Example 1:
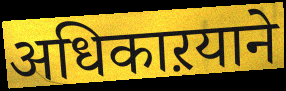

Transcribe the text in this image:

अधिकाऱयाने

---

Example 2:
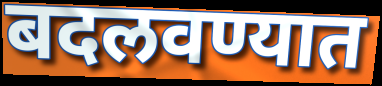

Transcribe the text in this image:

बदलवण्यात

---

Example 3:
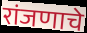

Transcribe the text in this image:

रांजणाचे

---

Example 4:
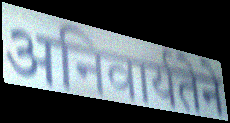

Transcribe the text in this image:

अनिवार्यतेने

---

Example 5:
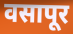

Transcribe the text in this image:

वसापूर